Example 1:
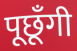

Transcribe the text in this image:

पूछूँगी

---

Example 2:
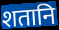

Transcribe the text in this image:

शतानि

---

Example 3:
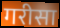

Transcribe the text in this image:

गरीसा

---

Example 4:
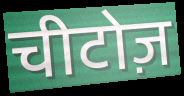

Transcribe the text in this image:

चीटोज़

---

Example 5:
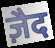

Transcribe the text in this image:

ज़ैद